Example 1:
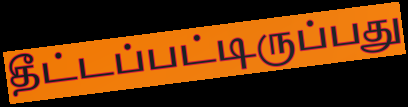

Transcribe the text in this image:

தீட்டப்பட்டிருப்பது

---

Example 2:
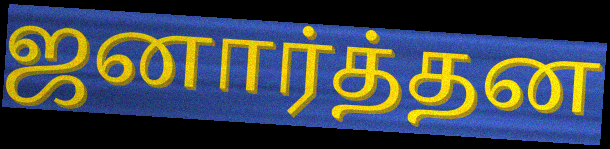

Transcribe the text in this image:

ஜனார்த்தன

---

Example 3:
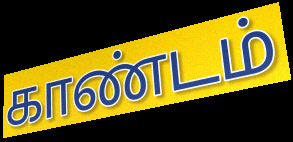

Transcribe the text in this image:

காண்டம்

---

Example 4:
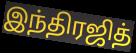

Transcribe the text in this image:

இந்திரஜித்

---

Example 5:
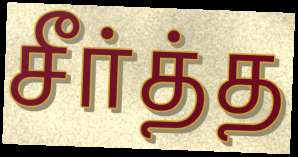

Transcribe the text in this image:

சீர்த்த